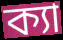
ক্যা